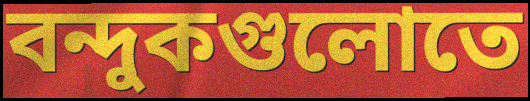
বন্দুকগুলোতে